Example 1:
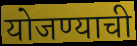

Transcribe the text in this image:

योजण्याची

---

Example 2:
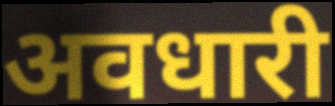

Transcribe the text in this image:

अवधारी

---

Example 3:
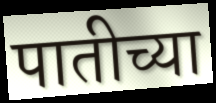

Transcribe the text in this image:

पातीच्या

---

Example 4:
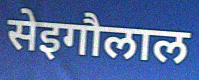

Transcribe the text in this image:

सेइगौलाल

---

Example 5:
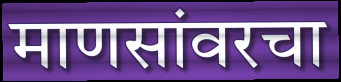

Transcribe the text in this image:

माणसांवरचा